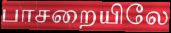
பாசறையிலே